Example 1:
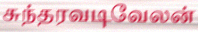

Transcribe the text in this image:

சுந்தரவடிவேலன்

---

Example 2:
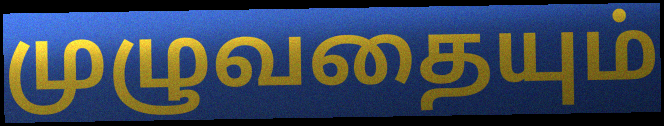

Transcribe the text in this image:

முழுவதையும்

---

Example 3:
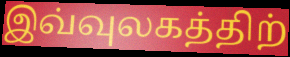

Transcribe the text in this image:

இவ்வுலகத்திற்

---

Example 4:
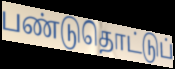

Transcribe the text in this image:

பண்டுதொட்டுப்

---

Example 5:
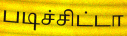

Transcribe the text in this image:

படிச்சிட்டா